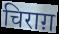
चिराग़